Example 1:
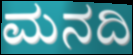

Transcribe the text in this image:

ಮನದಿ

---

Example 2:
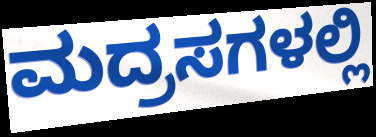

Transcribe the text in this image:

ಮದ್ರಸಗಳಲ್ಲಿ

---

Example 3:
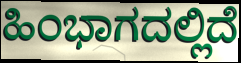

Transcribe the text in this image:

ಹಿಂಭಾಗದಲ್ಲಿದೆ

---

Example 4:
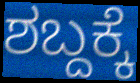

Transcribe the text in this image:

ಶಬ್ದಕ್ಕೆ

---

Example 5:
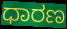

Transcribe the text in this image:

ಧಾರಣ